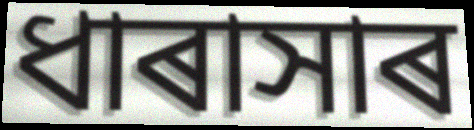
ধাৰাসাৰ